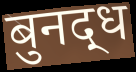
बुनद्ध